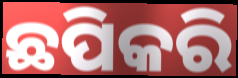
ଛପିକରି